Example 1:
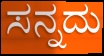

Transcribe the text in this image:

ಸನ್ನದು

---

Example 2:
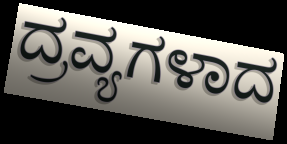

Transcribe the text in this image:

ದ್ರವ್ಯಗಳಾದ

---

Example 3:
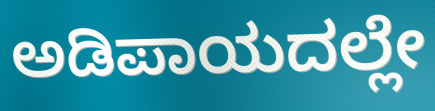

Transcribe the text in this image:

ಅಡಿಪಾಯದಲ್ಲೇ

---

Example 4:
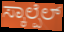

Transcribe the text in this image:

ಸ್ಕಾಲ್ಪೆಲ್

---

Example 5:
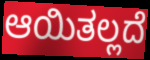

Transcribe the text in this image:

ಆಯಿತಲ್ಲದೆ